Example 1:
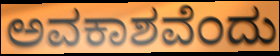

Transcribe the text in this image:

ಅವಕಾಶವೆಂದು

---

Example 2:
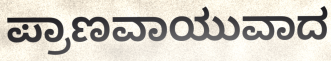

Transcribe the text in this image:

ಪ್ರಾಣವಾಯುವಾದ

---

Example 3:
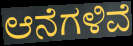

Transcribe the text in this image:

ಆನೆಗಳಿವೆ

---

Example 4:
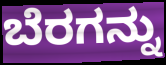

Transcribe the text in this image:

ಬೆರಗನ್ನು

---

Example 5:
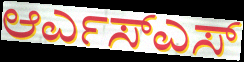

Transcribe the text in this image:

ಆರ್ಎಸ್ಎಸ್